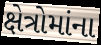
ક્ષેત્રોમાંના